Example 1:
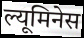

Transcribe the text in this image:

ल्यूमिनेस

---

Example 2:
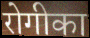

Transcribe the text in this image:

रोगीका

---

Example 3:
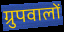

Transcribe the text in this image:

ग्रुपवालों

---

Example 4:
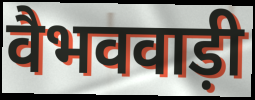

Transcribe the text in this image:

वैभववाड़ी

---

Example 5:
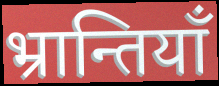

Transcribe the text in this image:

भ्रान्तियाँ